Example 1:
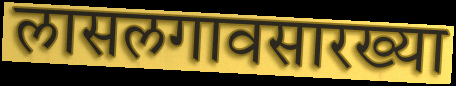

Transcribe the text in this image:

लासलगावसारख्या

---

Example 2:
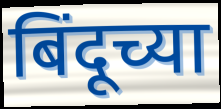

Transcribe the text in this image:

बिंदूच्या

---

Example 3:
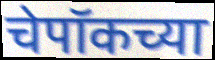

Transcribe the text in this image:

चेपॉकच्या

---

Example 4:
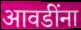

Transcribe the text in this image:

आवडींना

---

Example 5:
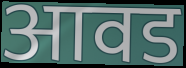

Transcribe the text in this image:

आवड